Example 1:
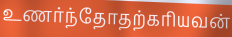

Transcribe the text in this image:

உணர்ந்தோதற்கரியவன்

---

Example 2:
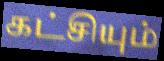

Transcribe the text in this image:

கட்சியும்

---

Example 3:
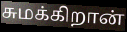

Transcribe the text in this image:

சுமக்கிறான்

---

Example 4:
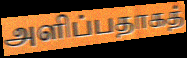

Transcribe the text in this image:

அளிப்பதாகத்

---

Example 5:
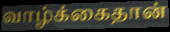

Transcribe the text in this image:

வாழ்க்கைதான்